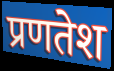
प्रणतेश